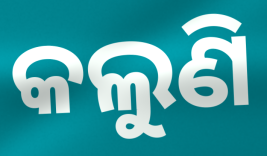
କଲୁଣି